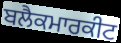
ਬਲੈਕਮਾਰਕੀਟ